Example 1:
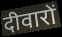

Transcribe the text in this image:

दीवारों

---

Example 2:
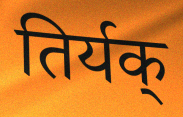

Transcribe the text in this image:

तिर्यक्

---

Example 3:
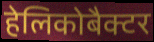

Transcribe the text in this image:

हेलिकोबैक्टर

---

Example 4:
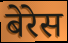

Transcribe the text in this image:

बेरेस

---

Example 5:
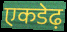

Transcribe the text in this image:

एकडेढ़